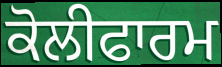
ਕੋਲੀਫਾਰਮ